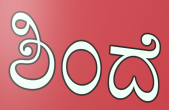
ಶಿಂದೆ